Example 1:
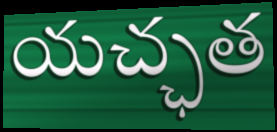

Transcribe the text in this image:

యచ్ఛత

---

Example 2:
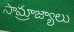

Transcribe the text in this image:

సామ్రాజ్యాలు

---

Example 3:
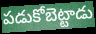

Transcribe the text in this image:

పడుకోబెట్టాడు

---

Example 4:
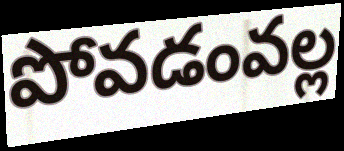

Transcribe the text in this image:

పోవడంవల్ల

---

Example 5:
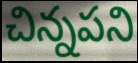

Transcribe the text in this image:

చిన్నపని